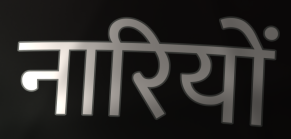
नारियों